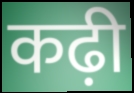
कढ़ी